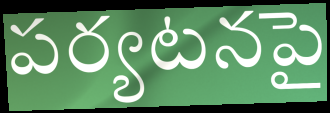
పర్యటనపై